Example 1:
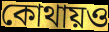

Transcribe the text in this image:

কোথায়ও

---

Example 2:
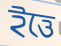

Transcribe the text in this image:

ইত্তে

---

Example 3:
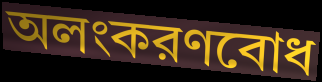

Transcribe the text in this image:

অলংকরণবোধ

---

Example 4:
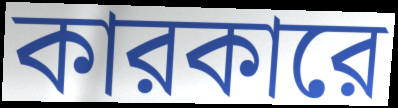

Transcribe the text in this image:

কারকারে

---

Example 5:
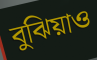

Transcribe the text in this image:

বুঝিয়াও